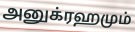
அனுக்ரஹமும்